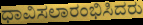
ಧಾವಿಸಲಾರಂಭಿಸಿದರು